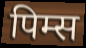
पिम्स